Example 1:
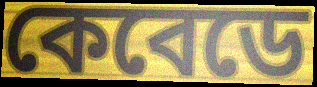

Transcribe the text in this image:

কেবেডে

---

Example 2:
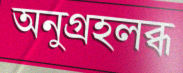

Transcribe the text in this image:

অনুগ্রহলব্ধ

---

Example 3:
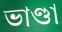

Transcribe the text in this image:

ভাণ্ডা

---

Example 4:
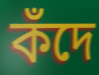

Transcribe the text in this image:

কঁদে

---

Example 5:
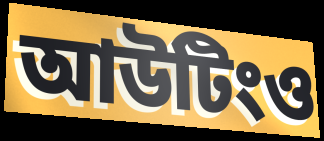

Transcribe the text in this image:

আউটিংও